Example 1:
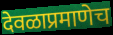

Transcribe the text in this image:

देवळाप्रमाणेच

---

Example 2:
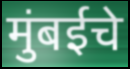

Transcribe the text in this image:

मुंबईचे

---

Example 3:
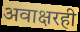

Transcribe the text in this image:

अवाक्षरही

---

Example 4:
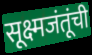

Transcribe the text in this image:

सूक्ष्मजंतूंची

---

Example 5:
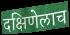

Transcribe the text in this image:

दक्षिणेलाच